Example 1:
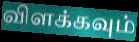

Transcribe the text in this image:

விளக்கவும்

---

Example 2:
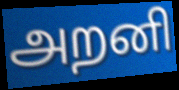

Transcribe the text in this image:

அறனி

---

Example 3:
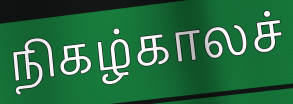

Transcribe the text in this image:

நிகழ்காலச்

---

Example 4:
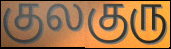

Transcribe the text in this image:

குலகுரு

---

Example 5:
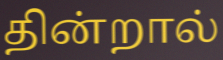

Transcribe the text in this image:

தின்றால்